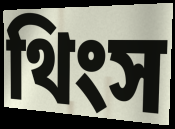
থিংস